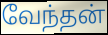
வேந்தன்